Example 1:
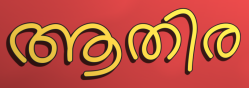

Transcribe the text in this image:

ആതിര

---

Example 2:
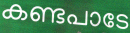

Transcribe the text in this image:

കണ്ടപാടേ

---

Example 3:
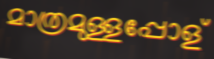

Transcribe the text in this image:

മാത്രമുള്ളപ്പോള്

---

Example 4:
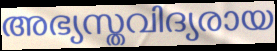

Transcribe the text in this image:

അഭ്യസ്തവിദ്യരായ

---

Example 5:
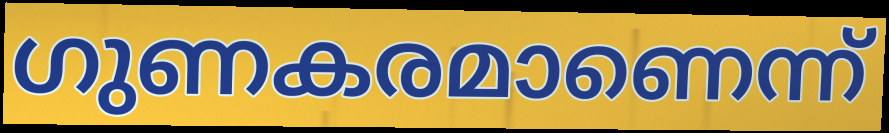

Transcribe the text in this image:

ഗുണകരമാണെന്ന്